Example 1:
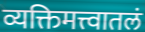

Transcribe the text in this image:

व्यक्तिमत्त्वातलं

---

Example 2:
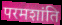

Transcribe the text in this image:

परमशांति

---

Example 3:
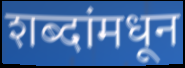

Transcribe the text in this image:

शब्दांमधून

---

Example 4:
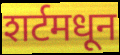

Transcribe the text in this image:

शर्टमधून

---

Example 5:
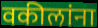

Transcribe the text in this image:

वकीलांना